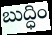
బుద్ధిం